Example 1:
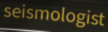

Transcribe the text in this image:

seismologist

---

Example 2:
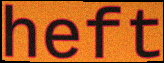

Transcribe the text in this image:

heft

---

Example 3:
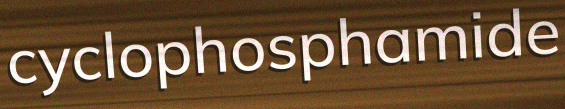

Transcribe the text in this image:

cyclophosphamide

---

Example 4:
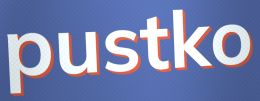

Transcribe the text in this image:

pustko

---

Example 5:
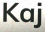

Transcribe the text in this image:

Kaj